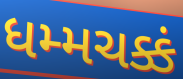
ધમ્મચક્કં